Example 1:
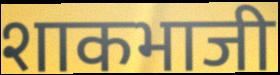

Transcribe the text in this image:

शाकभाजी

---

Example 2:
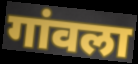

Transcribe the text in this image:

गांवला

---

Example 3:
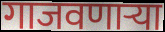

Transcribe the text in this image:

गाजवणाऱ्या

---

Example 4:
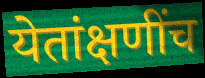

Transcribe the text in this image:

येतांक्षणींच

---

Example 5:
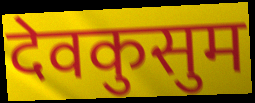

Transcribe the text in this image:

देवकुसुम